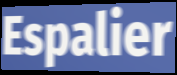
Espalier